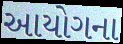
આયોગના